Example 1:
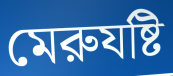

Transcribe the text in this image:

মেরুযষ্টি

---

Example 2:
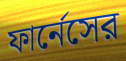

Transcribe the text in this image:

ফার্নেসের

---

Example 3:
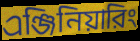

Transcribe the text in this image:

এঞ্জিনিয়ারিং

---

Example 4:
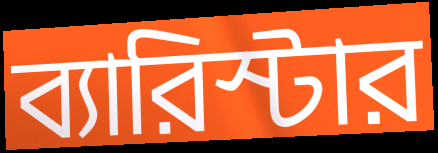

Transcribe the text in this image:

ব্যারিস্টার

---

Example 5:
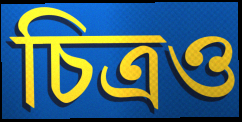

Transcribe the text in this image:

চিত্রও